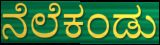
ನೆಲೆಕಂಡು